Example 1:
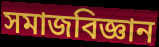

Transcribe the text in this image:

সমাজবিজ্ঞান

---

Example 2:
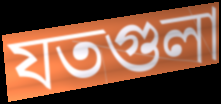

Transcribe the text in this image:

যতগুলা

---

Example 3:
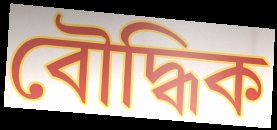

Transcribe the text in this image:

বৌদ্ধিক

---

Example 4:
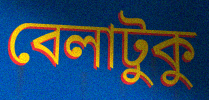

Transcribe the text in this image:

বেলাটুকু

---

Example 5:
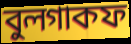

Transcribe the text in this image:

বুলগাকফ